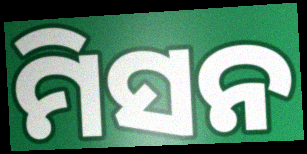
ମିସନ